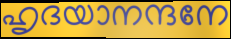
ഹൃദയാനന്ദനേ